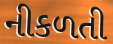
નીકળતી